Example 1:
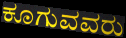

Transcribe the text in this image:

ಕೂಗುವವರು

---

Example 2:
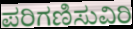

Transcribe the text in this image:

ಪರಿಗಣಿಸುವಿರಿ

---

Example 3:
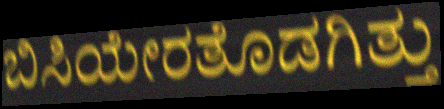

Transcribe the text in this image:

ಬಿಸಿಯೇರತೊಡಗಿತ್ತು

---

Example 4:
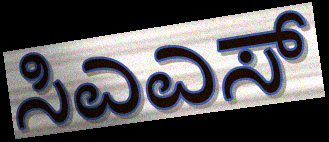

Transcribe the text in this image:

ಸಿಎಎಸ್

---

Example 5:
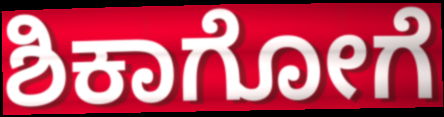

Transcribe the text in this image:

ಶಿಕಾಗೋಗೆ